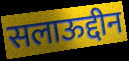
सलाऊद्दीन